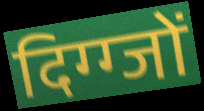
दिग्ग्जों